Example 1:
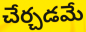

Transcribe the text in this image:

చేర్చడమే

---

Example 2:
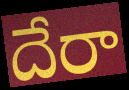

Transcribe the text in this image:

దేరా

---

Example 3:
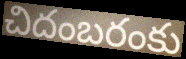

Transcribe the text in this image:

చిదంబరంకు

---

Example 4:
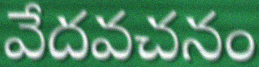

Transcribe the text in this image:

వేదవచనం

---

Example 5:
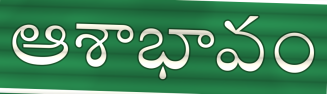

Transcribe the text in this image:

ఆశాభావం